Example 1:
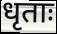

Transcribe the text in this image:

धृताः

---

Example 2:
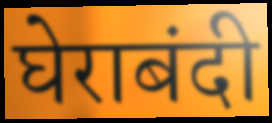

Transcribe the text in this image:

घेराबंदी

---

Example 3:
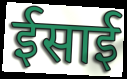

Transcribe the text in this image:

ईसाई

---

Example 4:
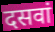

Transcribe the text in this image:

दसवां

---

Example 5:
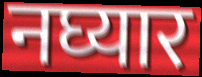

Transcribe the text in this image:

नघ्यार